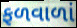
ફળવાળાં